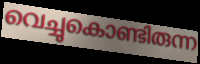
വെച്ചുകൊണ്ടിരുന്ന